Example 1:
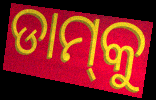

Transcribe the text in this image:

ଡାମ୍‍କୁ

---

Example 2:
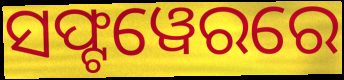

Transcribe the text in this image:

ସଫ୍ଟୱେରରେ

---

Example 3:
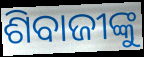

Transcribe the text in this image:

ଶିବାଜୀଙ୍କୁ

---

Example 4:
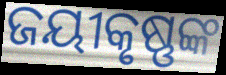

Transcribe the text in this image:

ଜୟୀକୃଷ୍ଣଙ୍କ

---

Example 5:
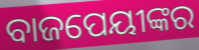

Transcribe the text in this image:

ବାଜପେୟୀଙ୍କର